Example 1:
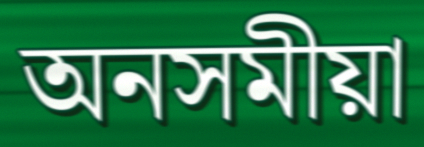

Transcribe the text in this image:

অনসমীয়া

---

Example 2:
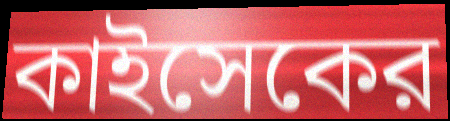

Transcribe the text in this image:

কাইসেকের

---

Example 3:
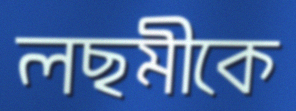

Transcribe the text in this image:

লছমীকে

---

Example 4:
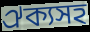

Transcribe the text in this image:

ঐক্যসহ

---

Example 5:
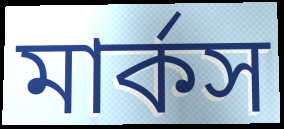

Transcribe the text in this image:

মার্কস